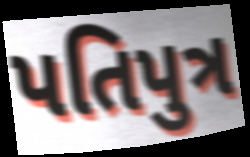
પતિપુત્ર